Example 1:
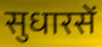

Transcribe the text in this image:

सुधारसें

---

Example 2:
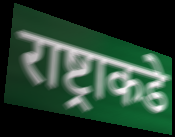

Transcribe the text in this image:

राष्ट्राकडे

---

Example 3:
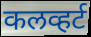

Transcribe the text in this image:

कलव्हर्ट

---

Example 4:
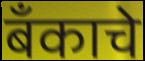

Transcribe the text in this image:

बँकाचे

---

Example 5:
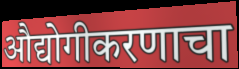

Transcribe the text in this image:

औद्योगीकरणाचा